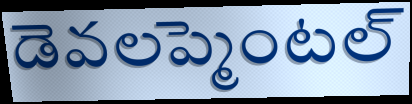
డెవలప్మెంటల్